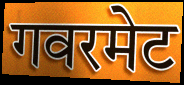
गवरमेट